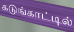
கடுங்காட்டில்